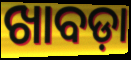
ଖାବଡ଼ା